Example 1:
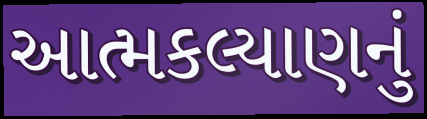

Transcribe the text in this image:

આત્મકલ્યાણનું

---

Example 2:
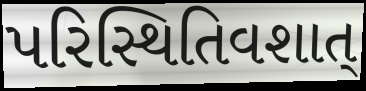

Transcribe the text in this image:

પરિસ્થિતિવશાત્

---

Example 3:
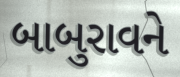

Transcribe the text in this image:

બાબુરાવને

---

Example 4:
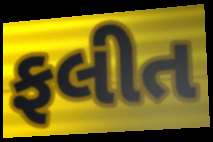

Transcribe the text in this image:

ફલીત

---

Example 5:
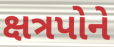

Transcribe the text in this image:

ક્ષત્રપોને